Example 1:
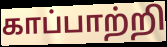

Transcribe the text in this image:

காப்பாற்றி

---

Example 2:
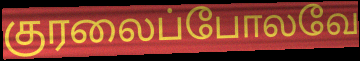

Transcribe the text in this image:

குரலைப்போலவே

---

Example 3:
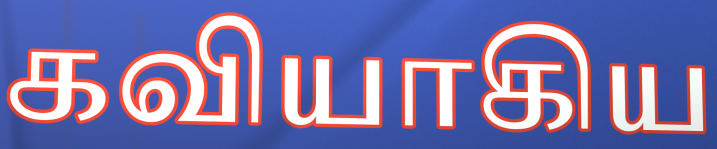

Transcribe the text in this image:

கவியாகிய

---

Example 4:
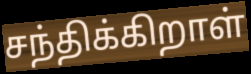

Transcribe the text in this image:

சந்திக்கிறாள்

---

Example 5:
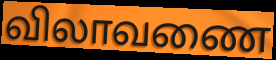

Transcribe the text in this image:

விலாவணை